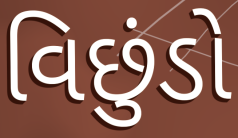
વિછુંડો